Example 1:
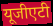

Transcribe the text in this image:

यूजीएटी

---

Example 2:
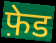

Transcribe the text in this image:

फ़ेड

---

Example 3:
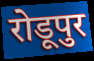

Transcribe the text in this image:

रोडूपुर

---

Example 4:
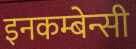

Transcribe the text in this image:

इनकम्बेन्सी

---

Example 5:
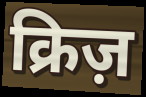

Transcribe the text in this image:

क्रिज़